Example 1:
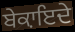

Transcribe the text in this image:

ਬੇਕ਼ਾਇਦੇ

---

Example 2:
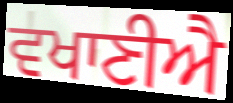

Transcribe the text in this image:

ਵਖਾਣੀਐ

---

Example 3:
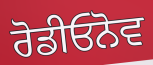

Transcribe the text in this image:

ਰੋਡੀਓਨੋਵ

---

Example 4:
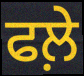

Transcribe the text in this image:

ਫਲ਼ੇ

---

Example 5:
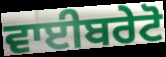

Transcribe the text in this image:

ਵਾਈਬਰੇਟੋ